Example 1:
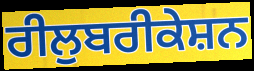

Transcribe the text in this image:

ਰੀਲੁਬਰੀਕੇਸ਼ਨ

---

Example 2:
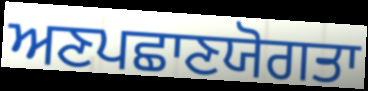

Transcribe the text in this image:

ਅਣਪਛਾਣਯੋਗਤਾ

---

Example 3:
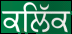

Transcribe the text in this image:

ਕਲਿੱਕ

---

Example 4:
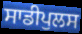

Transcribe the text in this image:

ਸਾਡੀਪੁਲਸ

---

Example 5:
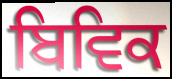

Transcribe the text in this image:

ਬਿਵਿਕ